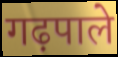
गढ़पाले